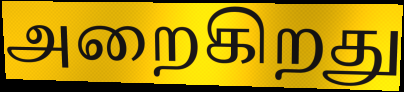
அறைகிறது